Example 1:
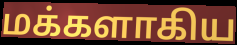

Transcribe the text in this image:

மக்களாகிய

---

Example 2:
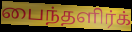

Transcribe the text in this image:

பைந்தளிர்க்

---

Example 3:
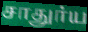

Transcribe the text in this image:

சாதுர்ய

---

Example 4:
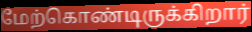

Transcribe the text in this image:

மேற்கொண்டிருக்கிறார்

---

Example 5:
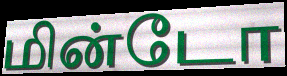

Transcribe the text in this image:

மின்டோ